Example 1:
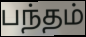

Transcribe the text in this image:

பந்தம்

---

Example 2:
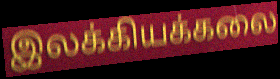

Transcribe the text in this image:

இலக்கியக்கலை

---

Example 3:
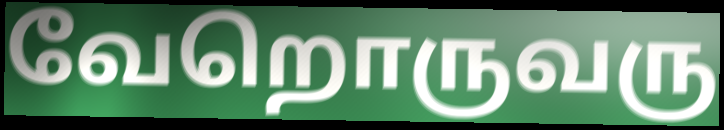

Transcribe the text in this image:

வேறொருவரு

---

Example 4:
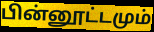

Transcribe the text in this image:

பின்னூட்டமும்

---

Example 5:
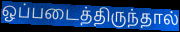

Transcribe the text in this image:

ஒப்படைத்திருந்தால்